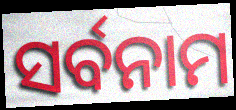
ସର୍ବନାମ